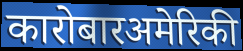
कारोबारअमेरिकी